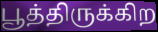
பூத்திருக்கிற